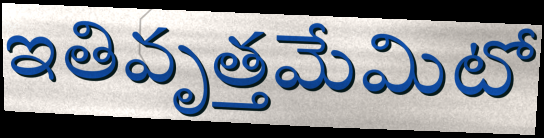
ఇతివృత్తమేమిటో